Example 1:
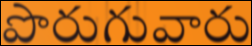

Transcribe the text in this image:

పొరుగువారు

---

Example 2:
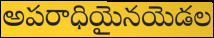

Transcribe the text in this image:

అపరాధియైనయెడల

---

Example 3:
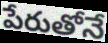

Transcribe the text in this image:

పేరుతోనే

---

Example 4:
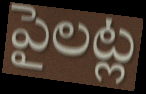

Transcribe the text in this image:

పైలట్ల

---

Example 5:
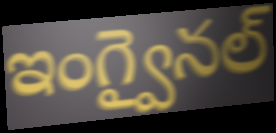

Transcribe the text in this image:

ఇంగ్వైనల్